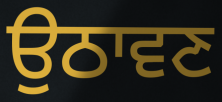
ਉਠਾਵਣ